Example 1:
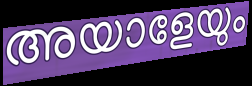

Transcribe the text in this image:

അയാളേയും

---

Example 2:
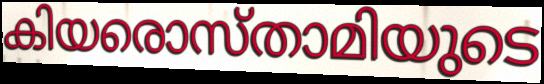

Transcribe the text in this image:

കിയരൊസ്താമിയുടെ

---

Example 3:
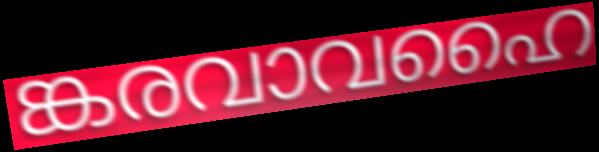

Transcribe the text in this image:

ങ്കരവാവഹൈ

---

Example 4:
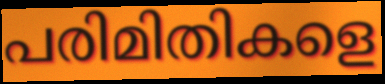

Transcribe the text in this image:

പരിമിതികളെ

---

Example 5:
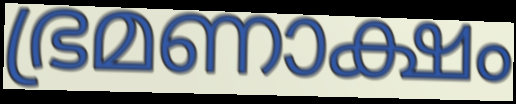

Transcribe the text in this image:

ഭ്രമണാക്ഷം